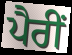
ਪੈਰੀਂ